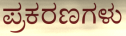
ಪ್ರಕರಣಗಳು